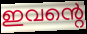
ഇവന്റെ